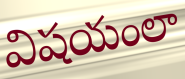
విషయంలా